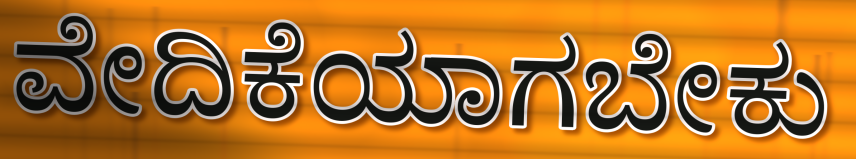
ವೇದಿಕೆಯಾಗಬೇಕು